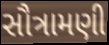
સૌત્રામણી